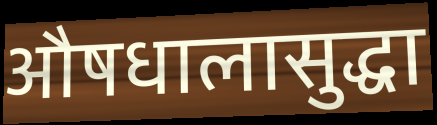
औषधालासुद्धा